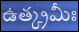
ఉత్క్రమీః